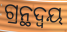
ଗ୍ରନ୍ଥଦ୍ଵୟ